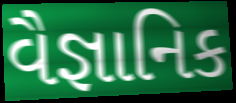
વૈજ્ઞાનિક